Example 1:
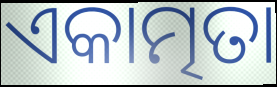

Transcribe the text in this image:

ଏକାତ୍ମତା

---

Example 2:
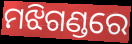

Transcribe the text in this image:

ମଝିଗଣ୍ଡରେ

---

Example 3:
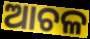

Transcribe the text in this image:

ଆଚଳ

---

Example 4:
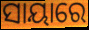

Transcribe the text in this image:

ସାୟାରେ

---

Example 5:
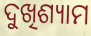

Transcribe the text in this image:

ଦୁଖିଶ୍ୟାମ